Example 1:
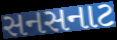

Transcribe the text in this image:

સનસનાટ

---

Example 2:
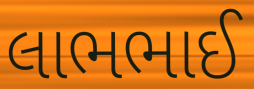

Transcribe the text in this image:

લાભભાઈ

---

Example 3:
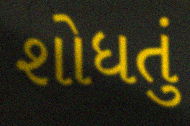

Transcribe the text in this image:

શોધતું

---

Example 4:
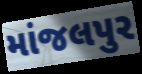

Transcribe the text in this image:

માંજલપુર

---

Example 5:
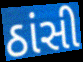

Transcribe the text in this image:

ઠાંસી